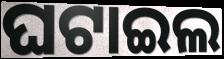
ଘଟାଇଲ